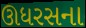
ઊધરસના